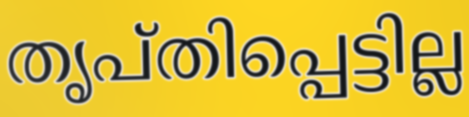
തൃപ്തിപ്പെട്ടില്ല